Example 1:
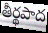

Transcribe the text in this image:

తీర్థపాద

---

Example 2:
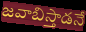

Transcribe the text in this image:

జవాబిస్తాడనే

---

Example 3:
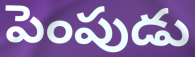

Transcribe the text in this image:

పెంపుడు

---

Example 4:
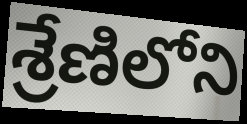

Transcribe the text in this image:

శ్రేణిలోని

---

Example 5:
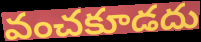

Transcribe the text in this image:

వంచకూడదు